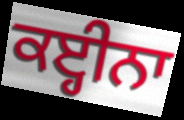
ਕੲ੍ਹੀਨਾ